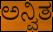
ಅನ್ವಿತ